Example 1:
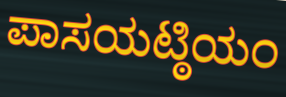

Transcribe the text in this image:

ಪಾಸಯಟ್ಠಿಯಂ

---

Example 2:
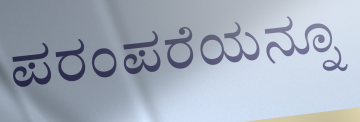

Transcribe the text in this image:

ಪರಂಪರೆಯನ್ನೂ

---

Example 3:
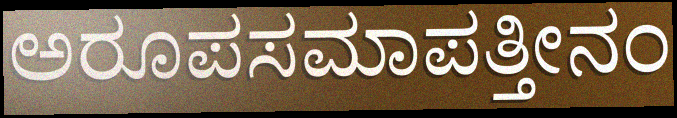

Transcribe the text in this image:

ಅರೂಪಸಮಾಪತ್ತೀನಂ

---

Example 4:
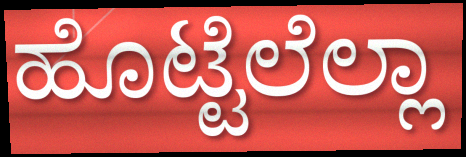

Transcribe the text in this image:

ಹೊಟ್ಟೆಲೆಲ್ಲಾ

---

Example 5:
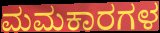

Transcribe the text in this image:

ಮಮಕಾರಗಳ